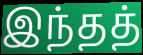
இந்தத்